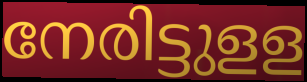
നേരിട്ടുളള